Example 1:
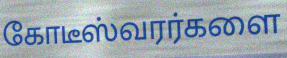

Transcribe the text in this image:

கோடீஸ்வரர்களை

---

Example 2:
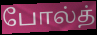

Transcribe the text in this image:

போல்த்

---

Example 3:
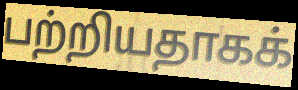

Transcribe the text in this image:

பற்றியதாகக்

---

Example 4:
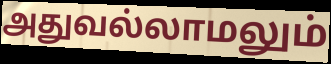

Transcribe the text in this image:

அதுவல்லாமலும்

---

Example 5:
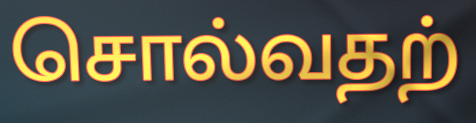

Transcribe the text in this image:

சொல்வதற்